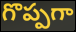
గొప్పగా